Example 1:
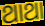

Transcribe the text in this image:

ଥାଥା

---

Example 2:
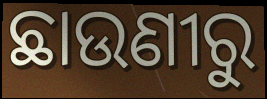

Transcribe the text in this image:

ଛାଉଣୀରୁ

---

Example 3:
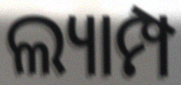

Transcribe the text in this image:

ଲ୍ୟାମ୍ପ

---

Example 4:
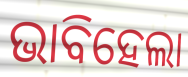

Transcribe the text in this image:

ଭାବିହେଲା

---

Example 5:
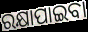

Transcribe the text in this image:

ରକ୍ଷାପାଇବା